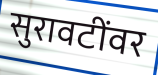
सुरावटींवर